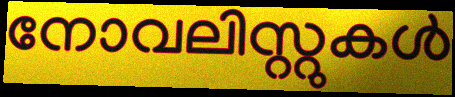
നോവലിസ്റ്റുകൾ